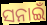
ସନାଇଁ